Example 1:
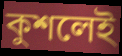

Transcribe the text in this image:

কুশলেই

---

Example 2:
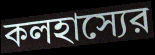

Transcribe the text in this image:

কলহাস্যের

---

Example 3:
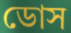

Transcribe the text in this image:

ডোস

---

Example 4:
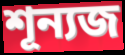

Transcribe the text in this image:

শূন্যজ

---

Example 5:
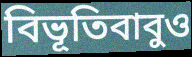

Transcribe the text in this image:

বিভূতিবাবুও